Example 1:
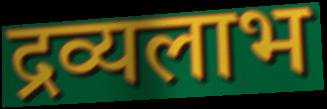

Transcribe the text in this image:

द्रव्यलाभ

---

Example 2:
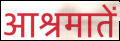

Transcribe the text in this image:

आश्रमातें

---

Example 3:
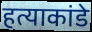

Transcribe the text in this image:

हत्याकांडे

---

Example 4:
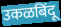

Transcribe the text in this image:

उकळबिंदू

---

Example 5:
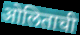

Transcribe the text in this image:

ओलिताची